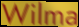
Wilma